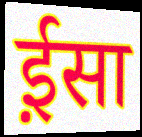
ई़सा